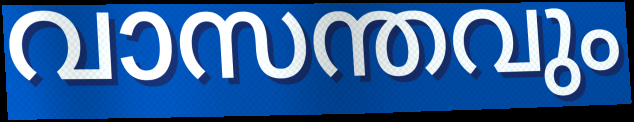
വാസന്തവും